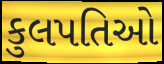
કુલપતિઓ